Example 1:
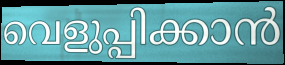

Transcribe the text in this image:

വെളുപ്പിക്കാൻ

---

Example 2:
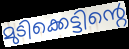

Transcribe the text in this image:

മുടിക്കെട്ടിന്റെ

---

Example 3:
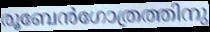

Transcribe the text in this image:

രൂബേൻഗോത്രത്തിനു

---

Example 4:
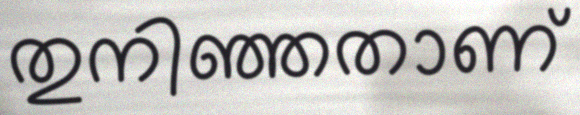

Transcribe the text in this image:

തുനിഞ്ഞതാണ്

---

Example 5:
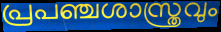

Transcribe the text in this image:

പ്രപഞ്ചശാസ്ത്രവും